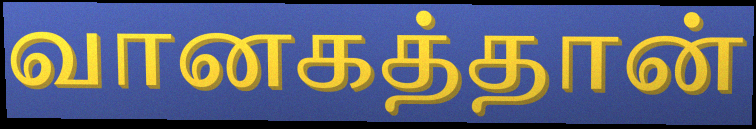
வானகத்தான்